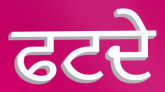
ਫਟਦੇ